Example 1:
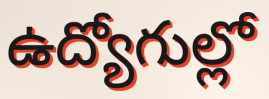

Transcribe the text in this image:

ఉద్యోగుల్లో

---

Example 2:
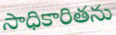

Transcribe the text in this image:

సాధికారితను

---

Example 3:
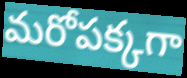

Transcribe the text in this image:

మరోపక్కగా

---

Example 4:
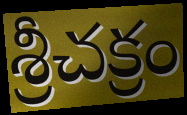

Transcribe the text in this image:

శ్రీచక్రం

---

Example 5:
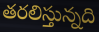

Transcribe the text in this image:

తరలిస్తున్నది